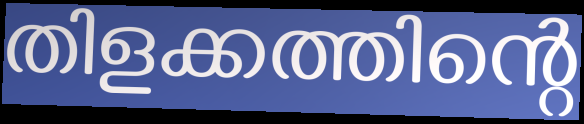
തിളക്കത്തിന്റെ